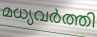
മധ്യവർത്തി